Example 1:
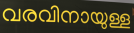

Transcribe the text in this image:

വരവിനായുള്ള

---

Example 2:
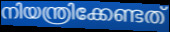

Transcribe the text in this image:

നിയന്ത്രിക്കേണ്ടത്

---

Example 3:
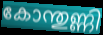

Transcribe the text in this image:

കോന്തുണ്ണി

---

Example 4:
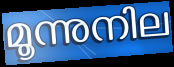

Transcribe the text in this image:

മൂന്നുനില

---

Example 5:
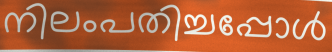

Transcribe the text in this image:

നിലംപതിച്ചപ്പോൾ